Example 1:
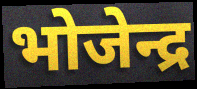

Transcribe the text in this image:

भोजेन्द्र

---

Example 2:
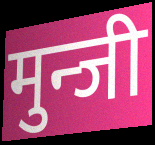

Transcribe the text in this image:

मुन्जी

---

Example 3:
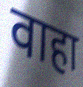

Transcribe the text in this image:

वाहा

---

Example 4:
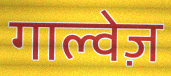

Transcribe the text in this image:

गाल्वेज़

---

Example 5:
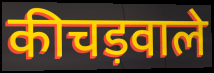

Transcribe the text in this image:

कीचड़वाले